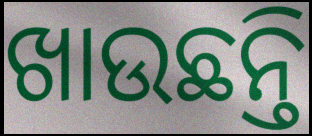
ଖାଉଛନ୍ତି